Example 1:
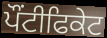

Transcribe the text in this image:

ਪੌਂਟੀਫਿਕੇਟ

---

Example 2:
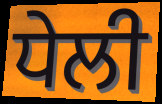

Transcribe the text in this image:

ਧੇਲੀ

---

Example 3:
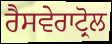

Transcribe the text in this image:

ਰੈਸਵੇਰਾਟ੍ਰੋਲ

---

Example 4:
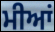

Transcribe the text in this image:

ਮੀਆਂ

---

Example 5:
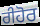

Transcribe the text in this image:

ਰੀਹੋਰ